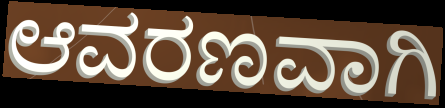
ಆವರಣವಾಗಿ